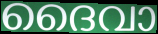
ദൈവാ